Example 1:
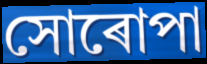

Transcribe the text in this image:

সোৰোপা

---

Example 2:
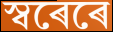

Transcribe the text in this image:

স্বৰেৰে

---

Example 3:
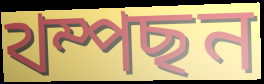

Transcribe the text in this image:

থম্পছন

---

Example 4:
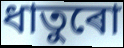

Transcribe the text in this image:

ধাতুৰো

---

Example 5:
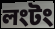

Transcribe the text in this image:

লংটং